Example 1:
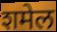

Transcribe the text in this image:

शमेल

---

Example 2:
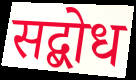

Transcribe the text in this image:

सद्बोध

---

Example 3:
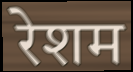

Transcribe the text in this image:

रेशम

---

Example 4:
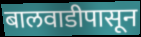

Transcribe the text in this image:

बालवाडीपासून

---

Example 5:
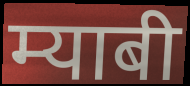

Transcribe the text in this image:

म्याबी